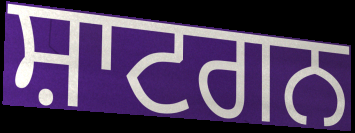
ਸ਼ਾਟਗਨ